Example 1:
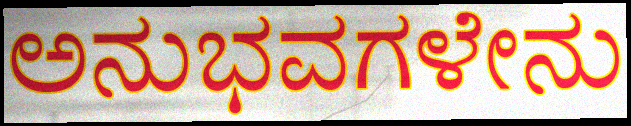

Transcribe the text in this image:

ಅನುಭವಗಳೇನು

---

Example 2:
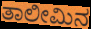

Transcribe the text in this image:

ತಾಲೀಮಿನ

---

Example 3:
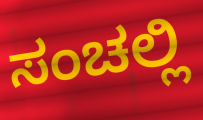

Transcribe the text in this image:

ಸಂಚಲ್ಲಿ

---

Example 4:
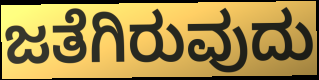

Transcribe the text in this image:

ಜತೆಗಿರುವುದು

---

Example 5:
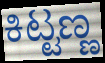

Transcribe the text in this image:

ಕಿಟ್ಟಣ್ಣ